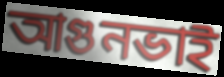
আগুনভাই